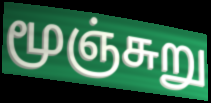
மூஞ்சுறு